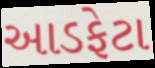
આડફેટા